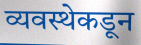
व्यवस्थेकडून